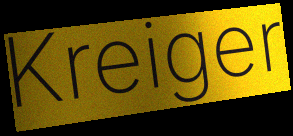
Kreiger